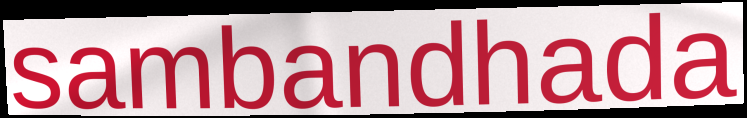
sambandhada